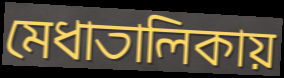
মেধাতালিকায়